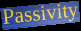
Passivity